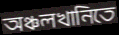
অঞ্চলখানিতে